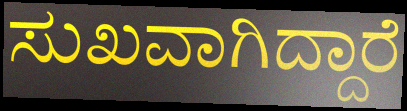
ಸುಖವಾಗಿದ್ದಾರೆ